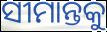
ସୀମାନ୍ତକୁ